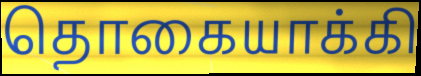
தொகையாக்கி